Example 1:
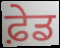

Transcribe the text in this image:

ਫ਼ੇਡ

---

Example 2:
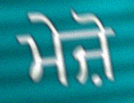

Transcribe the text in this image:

ਮੇਜ਼ੋ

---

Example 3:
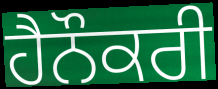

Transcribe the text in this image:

ਹੈਨੌਕਰੀ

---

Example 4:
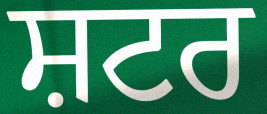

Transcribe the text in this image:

ਸ਼ਟਰ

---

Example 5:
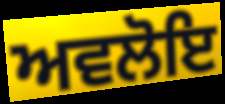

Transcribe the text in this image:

ਅਵਲੋਇ